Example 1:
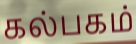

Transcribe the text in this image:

கல்பகம்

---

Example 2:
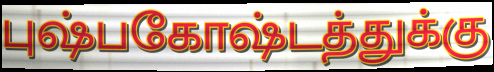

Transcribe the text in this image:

புஷ்பகோஷ்டத்துக்கு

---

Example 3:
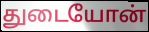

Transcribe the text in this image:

துடையோன்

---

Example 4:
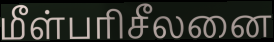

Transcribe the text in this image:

மீள்பரிசீலனை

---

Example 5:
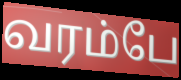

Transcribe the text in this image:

வரம்பே